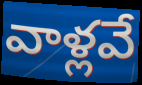
వాళ్లవే